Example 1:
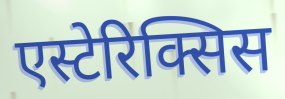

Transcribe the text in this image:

एस्टेरिक्सिस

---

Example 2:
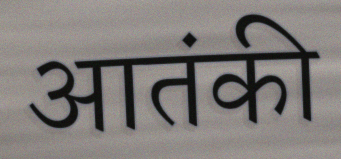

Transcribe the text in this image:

आतंकी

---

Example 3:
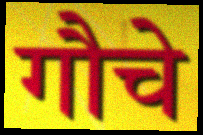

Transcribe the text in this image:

गौचे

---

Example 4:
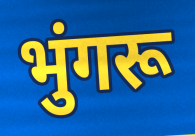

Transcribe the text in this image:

भुंगरू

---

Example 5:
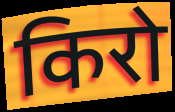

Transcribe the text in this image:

किरो